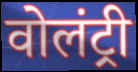
वोलंट्री